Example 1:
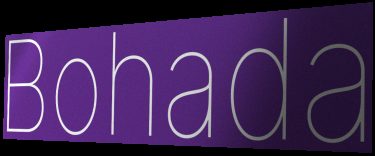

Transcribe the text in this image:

Bohada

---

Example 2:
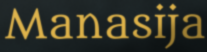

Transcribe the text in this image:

Manasija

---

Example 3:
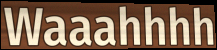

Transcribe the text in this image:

Waaahhhh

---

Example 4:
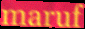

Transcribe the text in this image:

maruf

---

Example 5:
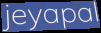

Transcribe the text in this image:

jeyapal